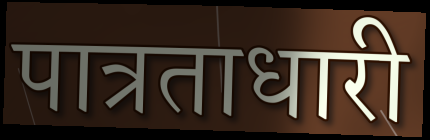
पात्रताधारी